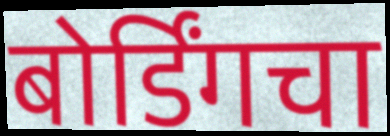
बोर्डिंगचा